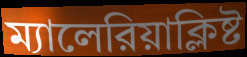
ম্যালেরিয়াক্লিষ্ট